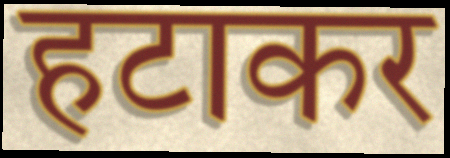
हटाकर